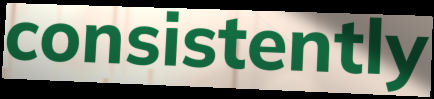
consistently